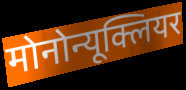
मोनोन्यूक्लियर